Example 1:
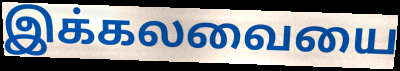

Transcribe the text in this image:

இக்கலவையை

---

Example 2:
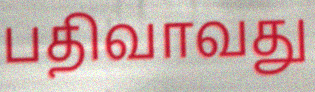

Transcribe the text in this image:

பதிவாவது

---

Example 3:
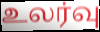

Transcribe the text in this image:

உலர்வு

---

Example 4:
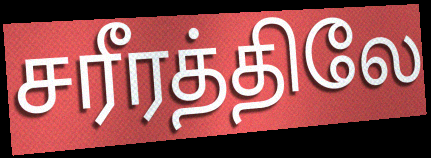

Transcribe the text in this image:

சரீரத்திலே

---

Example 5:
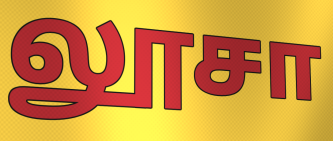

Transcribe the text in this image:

லூசா